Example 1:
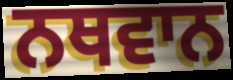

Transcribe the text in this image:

ਨਥਵਾਨ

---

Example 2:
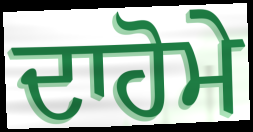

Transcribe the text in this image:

ਦਾਹੋਮੇ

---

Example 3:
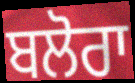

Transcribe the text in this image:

ਬਲੋਰਾ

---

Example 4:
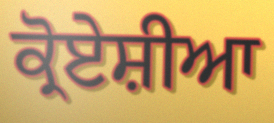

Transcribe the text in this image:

ਕ੍ਰੋਏਸ਼ੀਆ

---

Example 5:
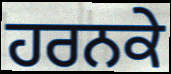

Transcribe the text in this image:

ਹਰਨਕੇ